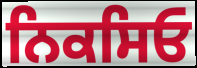
ਨਿਕਸਿਓ